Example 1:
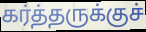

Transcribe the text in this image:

கர்த்தருக்குச்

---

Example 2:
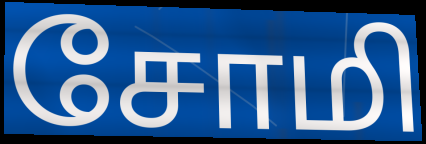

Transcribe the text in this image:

சோமி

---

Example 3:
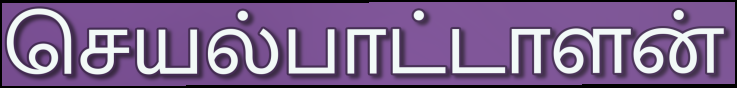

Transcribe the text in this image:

செயல்பாட்டாளன்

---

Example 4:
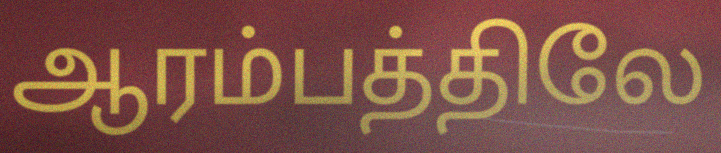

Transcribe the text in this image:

ஆரம்பத்திலே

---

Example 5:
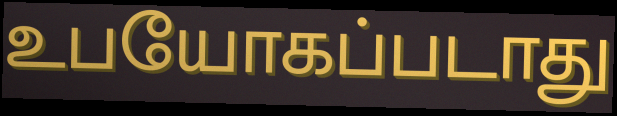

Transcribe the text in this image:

உபயோகப்படாது